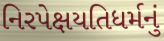
નિરપેક્ષયતિધર્મનું